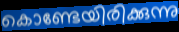
കൊണ്ടേയിരിക്കുന്നു